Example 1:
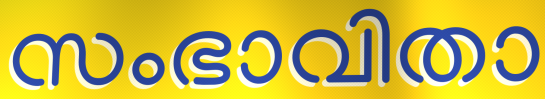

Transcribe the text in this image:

സംഭാവിതാ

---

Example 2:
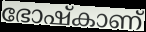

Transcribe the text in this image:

ഭോഷ്കാണ്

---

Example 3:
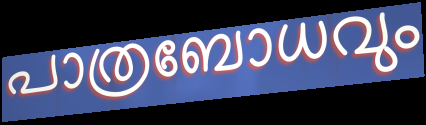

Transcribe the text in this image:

പാത്രബോധവും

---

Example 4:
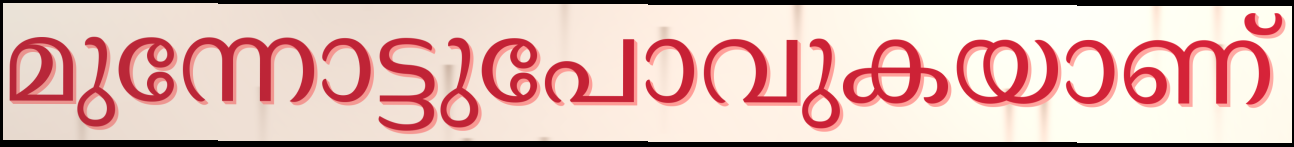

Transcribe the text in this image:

മുന്നോട്ടുപോവുകയാണ്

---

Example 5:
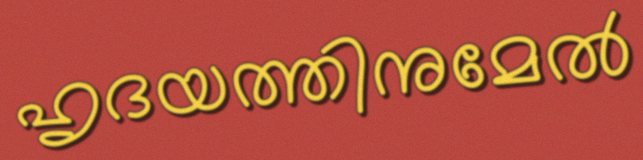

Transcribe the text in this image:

ഹൃദയത്തിനുമേൽ